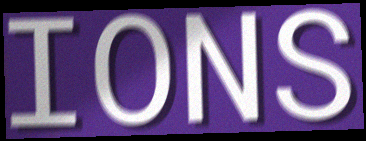
IONS